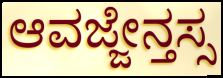
ಆವಜ್ಜೇನ್ತಸ್ಸ